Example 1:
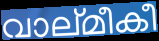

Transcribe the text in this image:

വാല്മീകീ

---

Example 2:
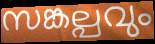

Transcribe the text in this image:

സങ്കല്പവും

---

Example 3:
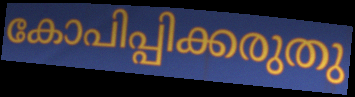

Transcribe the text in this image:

കോപിപ്പിക്കരുതു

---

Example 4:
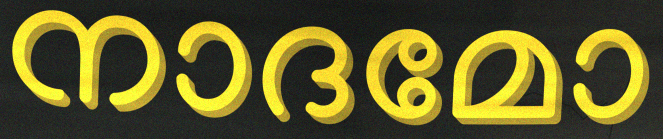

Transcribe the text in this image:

നാദമോ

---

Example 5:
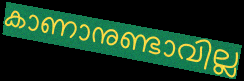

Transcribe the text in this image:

കാണാനുണ്ടാവില്ല